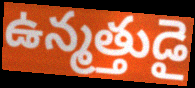
ఉన్మత్తుడై